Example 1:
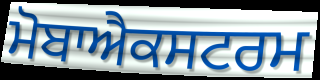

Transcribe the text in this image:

ਮੋਬਾਐਕਸਟਰਮ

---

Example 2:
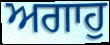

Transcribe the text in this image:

ਅਗਾਹੁ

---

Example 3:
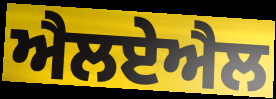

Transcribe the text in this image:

ਐਲਏਐਲ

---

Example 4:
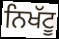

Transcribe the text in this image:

ਨਿਖੱਟੂ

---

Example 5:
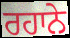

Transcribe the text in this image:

ਰਹਾਨੇ